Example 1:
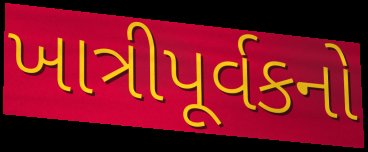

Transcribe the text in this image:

ખાત્રીપૂર્વકનો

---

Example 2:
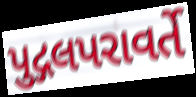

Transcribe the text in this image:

પુદ્ગલપરાવર્તે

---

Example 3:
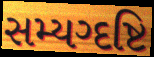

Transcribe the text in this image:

સમ્યગ્દષ્ટિ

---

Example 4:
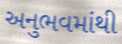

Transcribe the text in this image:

અનુભવમાંથી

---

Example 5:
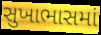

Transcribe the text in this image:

સુખાભાસમાં